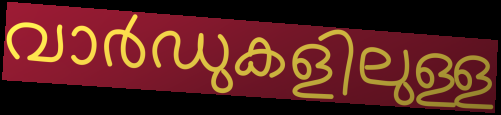
വാർഡുകളിലുള്ള